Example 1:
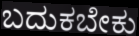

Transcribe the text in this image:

ಬದುಕಬೇಕು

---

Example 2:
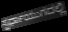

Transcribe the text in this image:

ಸ್ಪರ್ಧಾಯುಗದಲ್ಲಿ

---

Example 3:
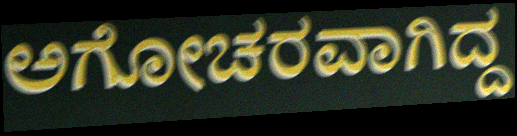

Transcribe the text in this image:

ಅಗೋಚರವಾಗಿದ್ದ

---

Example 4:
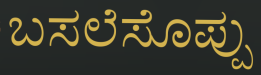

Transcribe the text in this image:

ಬಸಲೆಸೊಪ್ಪು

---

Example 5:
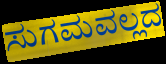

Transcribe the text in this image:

ಸುಗಮವಲ್ಲದ